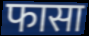
फासा